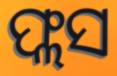
ଫ୍ଲସ